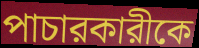
পাচারকারীকে